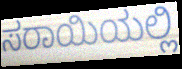
ಸರಾಯಿಯಲ್ಲಿ